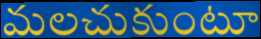
మలచుకుంటూ